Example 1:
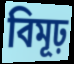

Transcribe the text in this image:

বিমূঢ়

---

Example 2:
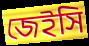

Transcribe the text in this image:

জেইসি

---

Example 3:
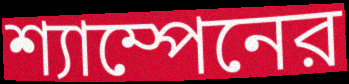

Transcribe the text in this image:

শ্যাম্পেনের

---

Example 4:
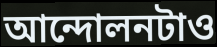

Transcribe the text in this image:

আন্দোলনটাও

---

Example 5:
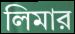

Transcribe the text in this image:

লিমার